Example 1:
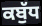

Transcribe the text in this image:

ਕਬੁੱਧ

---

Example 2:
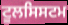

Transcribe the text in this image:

ਟੂਲਸਿਸਟਮ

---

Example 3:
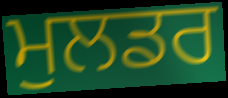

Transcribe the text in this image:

ਮੁਲਡਰ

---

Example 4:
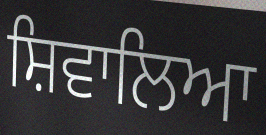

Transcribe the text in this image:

ਸ਼ਿਵਾਲਿਆ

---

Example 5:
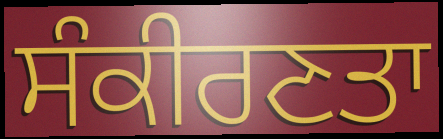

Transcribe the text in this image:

ਸੰਕੀਰਣਤਾ